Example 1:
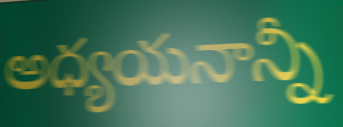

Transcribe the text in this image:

అధ్యయనాన్నీ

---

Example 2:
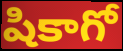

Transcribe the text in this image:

షికాగో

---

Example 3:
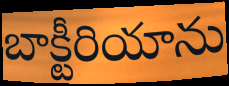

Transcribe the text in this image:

బాక్టీరియాను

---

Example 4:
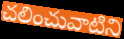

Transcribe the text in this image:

చలించువాటిని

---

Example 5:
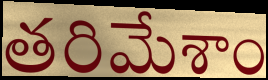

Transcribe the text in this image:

తరిమేశాం